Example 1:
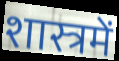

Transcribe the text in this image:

शास्त्रमें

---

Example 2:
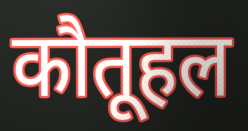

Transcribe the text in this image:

कौतूहल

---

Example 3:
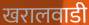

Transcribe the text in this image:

खरालवाडी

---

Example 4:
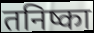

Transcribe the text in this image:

तनिष्का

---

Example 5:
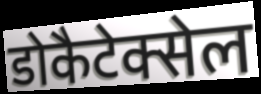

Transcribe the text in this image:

डोकैटेक्सेल